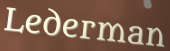
Lederman